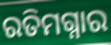
ରତିମଗ୍ନାର